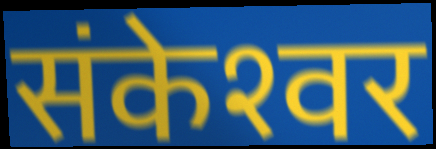
संकेश्वर